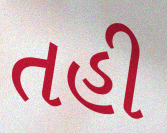
તહી